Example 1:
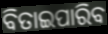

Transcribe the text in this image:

ବିତାଇପାରିବ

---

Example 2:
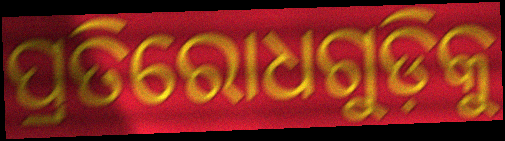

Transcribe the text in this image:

ପ୍ରତିରୋଧଗୁଡ଼ିକୁ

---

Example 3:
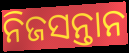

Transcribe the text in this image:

ନିଜସନ୍ତାନ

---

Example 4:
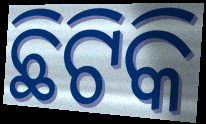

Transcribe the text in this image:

ଛିଟିକି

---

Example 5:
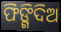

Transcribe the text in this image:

ଫିଙ୍ଗିଦିଅ